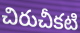
చిరుచీకటి